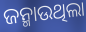
ଜନ୍ମାଉଥିଲା